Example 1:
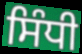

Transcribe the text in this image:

ਸਿੰਧੀ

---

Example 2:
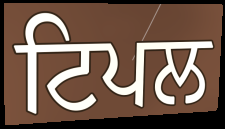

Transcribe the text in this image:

ਟਿਪਲ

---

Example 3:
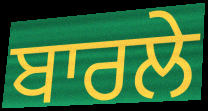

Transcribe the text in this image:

ਬਾਰਲੇ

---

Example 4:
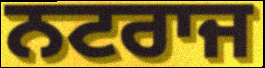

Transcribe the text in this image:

ਨਟਰਾਜ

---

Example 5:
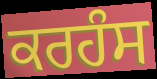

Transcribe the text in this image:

ਕਰਹੰਸ